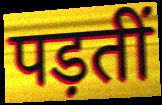
पड़तीं